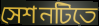
সেশনটিতে